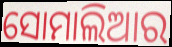
ସୋମାଲିଆର